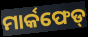
ମାର୍କଫେଡ୍